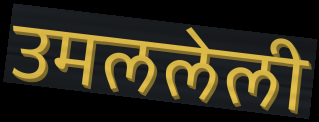
उमललेली